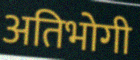
अतिभोगी